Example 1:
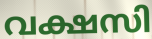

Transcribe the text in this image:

വക്ഷസി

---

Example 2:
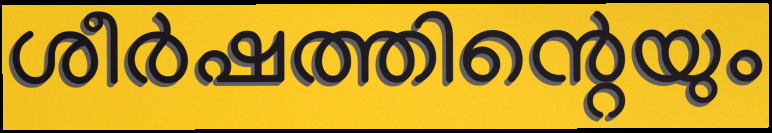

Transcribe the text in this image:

ശീർഷത്തിന്റെയും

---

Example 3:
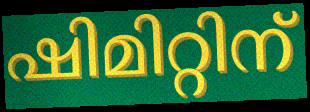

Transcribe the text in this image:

ഷിമിറ്റിന്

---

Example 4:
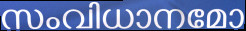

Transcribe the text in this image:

സംവിധാനമോ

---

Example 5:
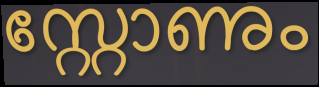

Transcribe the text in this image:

സ്റ്റോണും